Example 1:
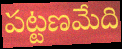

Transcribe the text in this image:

పట్టణమేది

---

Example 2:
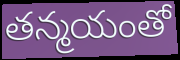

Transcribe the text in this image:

తన్మయంతో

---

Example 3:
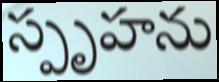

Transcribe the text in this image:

స్పృహను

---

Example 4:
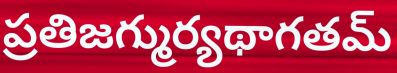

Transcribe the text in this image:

ప్రతిజగ్ముర్యథాగతమ్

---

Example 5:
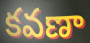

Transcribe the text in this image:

కవణా